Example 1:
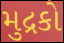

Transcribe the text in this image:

મુદ્રકો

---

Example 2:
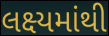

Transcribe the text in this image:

લક્ષ્યમાંથી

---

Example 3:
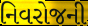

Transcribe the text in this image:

નિવરોજની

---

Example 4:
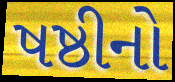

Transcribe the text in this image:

ષષ્ઠીનો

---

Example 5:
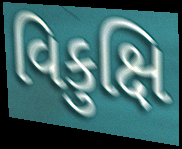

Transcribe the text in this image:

વિકુક્ષિ